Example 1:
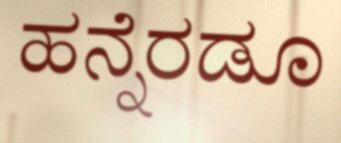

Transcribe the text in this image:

ಹನ್ನೆರಡೂ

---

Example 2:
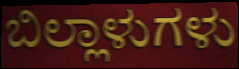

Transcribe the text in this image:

ಬಿಲ್ಲಾಳುಗಳು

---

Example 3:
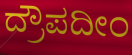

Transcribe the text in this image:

ದ್ರೌಪದೀಂ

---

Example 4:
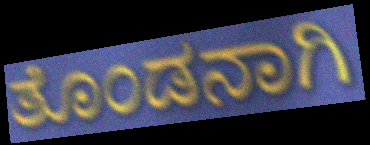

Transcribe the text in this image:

ತೊಂಡನಾಗಿ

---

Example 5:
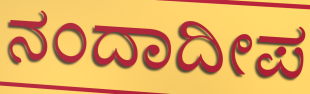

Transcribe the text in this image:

ನಂದಾದೀಪ